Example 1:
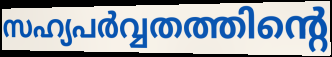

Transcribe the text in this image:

സഹ്യപർവ്വതത്തിന്റെ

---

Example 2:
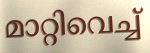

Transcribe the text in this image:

മാറ്റിവെച്ച്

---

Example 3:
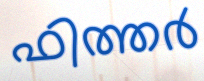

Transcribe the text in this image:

ഫിത്തർ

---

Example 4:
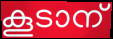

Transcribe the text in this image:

കൂടാന്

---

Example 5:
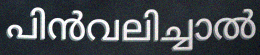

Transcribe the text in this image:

പിൻവലിച്ചാൽ